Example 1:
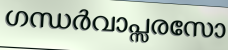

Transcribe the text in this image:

ഗന്ധർവാപ്സരസോ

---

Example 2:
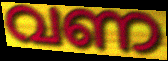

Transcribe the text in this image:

വണ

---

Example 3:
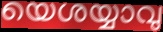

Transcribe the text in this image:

യെശയ്യാവു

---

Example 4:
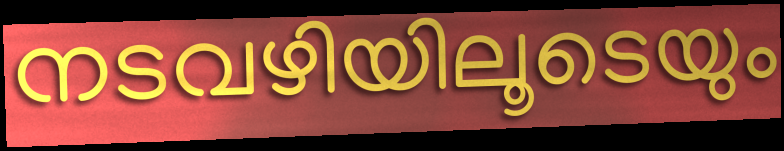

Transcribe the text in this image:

നടവഴിയിലൂടെയും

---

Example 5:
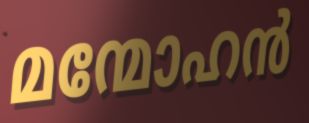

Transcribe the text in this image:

മന്മോഹൻ